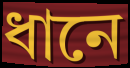
ধানে